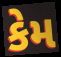
કેમ